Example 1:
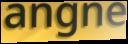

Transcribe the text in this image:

angne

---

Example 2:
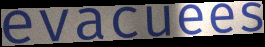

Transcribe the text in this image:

evacuees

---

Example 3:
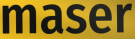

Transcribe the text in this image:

maser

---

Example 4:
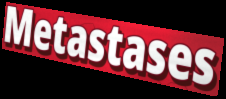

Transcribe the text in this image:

Metastases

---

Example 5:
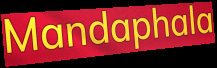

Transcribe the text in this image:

Mandaphala